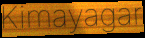
Kimayagar